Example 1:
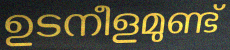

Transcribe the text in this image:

ഉടനീളമുണ്ട്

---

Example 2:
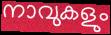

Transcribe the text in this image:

നാവുകളും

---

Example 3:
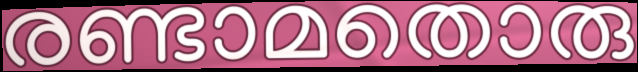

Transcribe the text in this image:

രണ്ടാമതൊരു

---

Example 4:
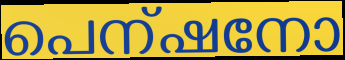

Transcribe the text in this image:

പെന്ഷനോ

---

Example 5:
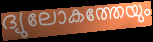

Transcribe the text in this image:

ദ്യുലോകത്തേയും